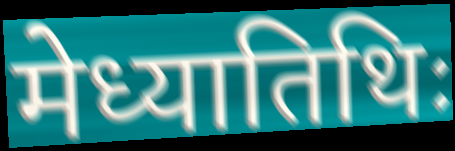
मेध्यातिथिः